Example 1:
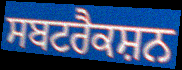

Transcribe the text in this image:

ਸਬਟਰੈਕਸ਼ਨ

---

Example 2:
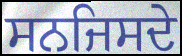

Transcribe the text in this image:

ਸਨਜਿਸਦੇ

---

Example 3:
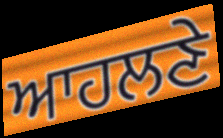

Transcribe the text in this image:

ਆਹਲਣੇ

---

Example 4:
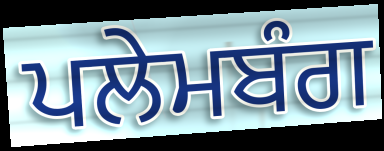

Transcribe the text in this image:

ਪਲੇਮਬੰਗ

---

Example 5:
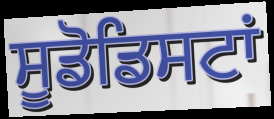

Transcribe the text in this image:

ਸੂਡੋਡਿਸਟਾਂ